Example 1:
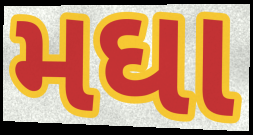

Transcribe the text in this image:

મઘા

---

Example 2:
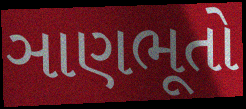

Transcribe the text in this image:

ઞાણભૂતો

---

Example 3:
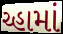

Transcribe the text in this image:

ચ્હામાં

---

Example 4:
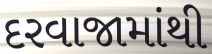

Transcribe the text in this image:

દરવાજામાંથી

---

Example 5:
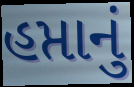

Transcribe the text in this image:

હપ્તાનું